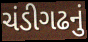
ચંડીગઢનું